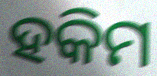
ହକିମ